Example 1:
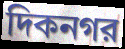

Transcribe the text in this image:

দিকনগর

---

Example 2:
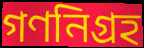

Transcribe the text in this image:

গণনিগ্রহ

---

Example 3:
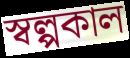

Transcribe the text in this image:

স্বল্পকাল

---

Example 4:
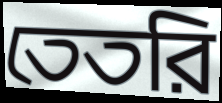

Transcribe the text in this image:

তেতরি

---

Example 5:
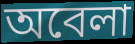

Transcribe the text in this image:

অবেলা